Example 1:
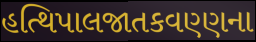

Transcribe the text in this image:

હત્થિપાલજાતકવણ્ણના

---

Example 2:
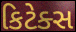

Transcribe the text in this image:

કિટેક્સ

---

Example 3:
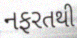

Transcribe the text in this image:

નફરતથી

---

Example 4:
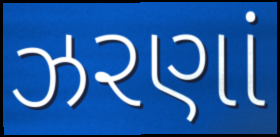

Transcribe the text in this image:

ઝરણાં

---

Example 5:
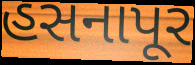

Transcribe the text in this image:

હસનાપૂર